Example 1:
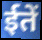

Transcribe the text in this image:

ईतें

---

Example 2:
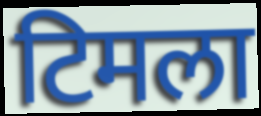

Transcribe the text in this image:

टिमला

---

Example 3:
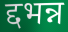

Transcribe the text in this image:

द्दभन्न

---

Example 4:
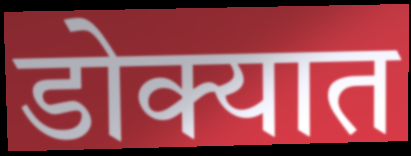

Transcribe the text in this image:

डोक्यात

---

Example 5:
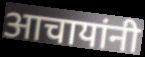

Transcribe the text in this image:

आचायांनी